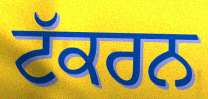
ਟੱਕਰਨ